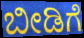
ಬೀಡಿಗೆ